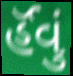
ર્હૅવું